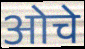
ओचे